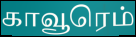
காவூரெம்